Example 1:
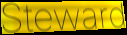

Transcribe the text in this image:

Steward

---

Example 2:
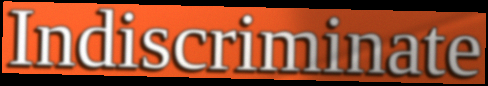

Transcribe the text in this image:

Indiscriminate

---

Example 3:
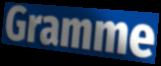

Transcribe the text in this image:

Gramme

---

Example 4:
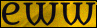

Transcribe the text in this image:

eww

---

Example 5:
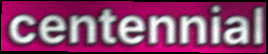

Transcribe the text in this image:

centennial